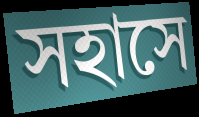
সহাসে